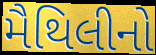
મૈથિલીનો